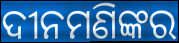
ଦୀନମଣିଙ୍କର